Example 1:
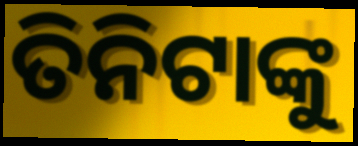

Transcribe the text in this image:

ତିନିଟାଙ୍କୁ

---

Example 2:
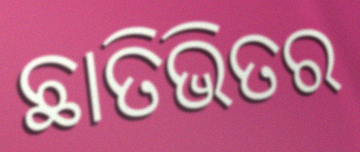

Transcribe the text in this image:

ଛାତିଭିତର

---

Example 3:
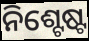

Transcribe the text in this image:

ନିଶ୍ଟେଷ୍ଟ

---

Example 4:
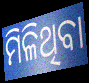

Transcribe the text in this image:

ମିଳିଥିବା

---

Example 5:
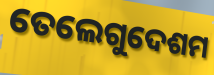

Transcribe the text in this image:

ତେଲେଗୁଦେଶମ